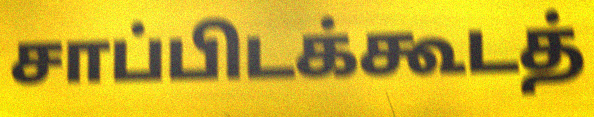
சாப்பிடக்கூடத்